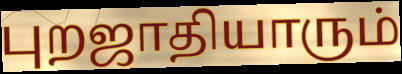
புறஜாதியாரும்